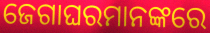
ଜେଗାଘରମାନଙ୍କରେ